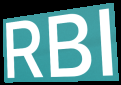
RBl